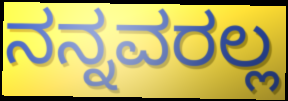
ನನ್ನವರಲ್ಲ